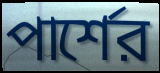
পার্শের